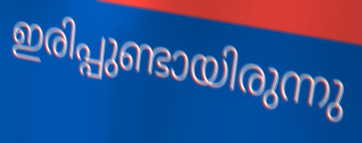
ഇരിപ്പുണ്ടായിരുന്നു